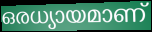
ഒരധ്യായമാണ്